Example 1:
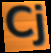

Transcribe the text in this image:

Cj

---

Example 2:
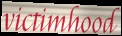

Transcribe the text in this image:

victimhood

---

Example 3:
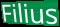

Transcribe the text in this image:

Filius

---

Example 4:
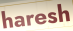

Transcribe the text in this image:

haresh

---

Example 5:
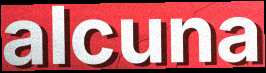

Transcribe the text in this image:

alcuna